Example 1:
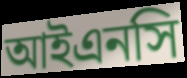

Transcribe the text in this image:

আইএনসি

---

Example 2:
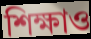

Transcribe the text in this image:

শিক্ষাও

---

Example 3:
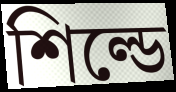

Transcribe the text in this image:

শিল্ডে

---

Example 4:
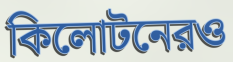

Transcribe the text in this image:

কিলোটনেরও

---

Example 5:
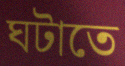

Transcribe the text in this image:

ঘটাতে